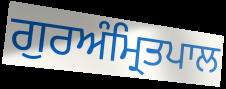
ਗੁਰਅੰਮ੍ਰਿਤਪਾਲ